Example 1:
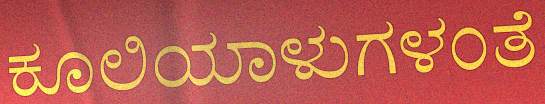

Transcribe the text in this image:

ಕೂಲಿಯಾಳುಗಳಂತೆ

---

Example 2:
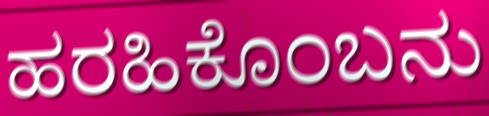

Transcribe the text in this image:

ಹರಹಿಕೊಂಬನು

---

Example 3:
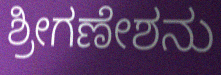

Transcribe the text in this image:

ಶ್ರೀಗಣೇಶನು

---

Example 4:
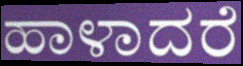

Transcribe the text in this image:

ಹಾಳಾದರೆ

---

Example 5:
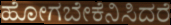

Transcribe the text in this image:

ಹೋಗಬೇಕೆನಿಸಿದರೆ